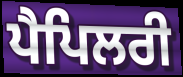
ਪੈਪਿਲਰੀ